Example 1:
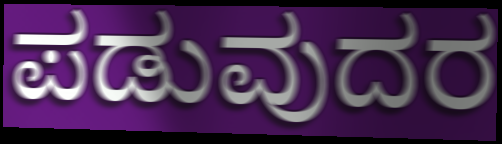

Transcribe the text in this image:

ಪಡುವುದರ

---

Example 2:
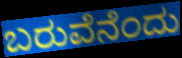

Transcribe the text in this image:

ಬರುವೆನೆಂದು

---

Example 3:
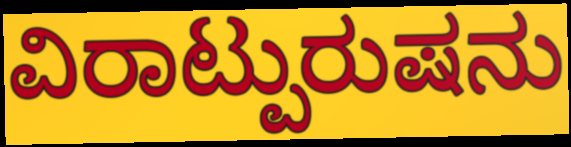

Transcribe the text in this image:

ವಿರಾಟ್ಪುರುಷನು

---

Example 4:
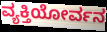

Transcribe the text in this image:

ವ್ಯಕ್ತಿಯೋರ್ವನ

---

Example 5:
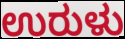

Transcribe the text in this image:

ಉರುಳು